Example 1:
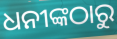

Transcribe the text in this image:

ଧନୀଙ୍କଠାରୁ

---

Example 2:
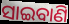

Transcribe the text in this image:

ସାଇବାଣି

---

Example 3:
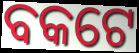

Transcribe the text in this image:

ବକଟେ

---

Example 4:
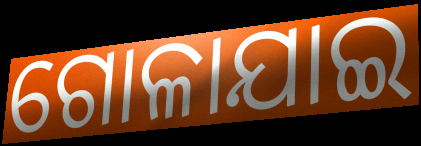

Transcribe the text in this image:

ଗୋଳାଯାଇ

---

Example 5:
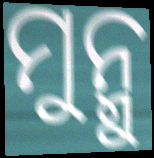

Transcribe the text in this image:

ମୁନ୍ମୁ